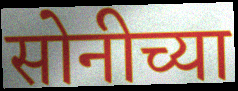
सोनीच्या